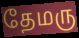
தேமரு